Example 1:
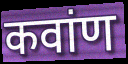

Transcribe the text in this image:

कवांण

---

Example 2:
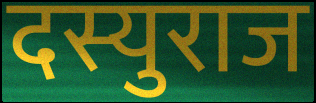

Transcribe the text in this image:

दस्युराज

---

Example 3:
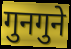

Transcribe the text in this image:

गुनगुने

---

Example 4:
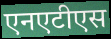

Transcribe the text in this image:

एनएटीएस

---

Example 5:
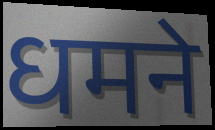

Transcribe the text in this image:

धमने